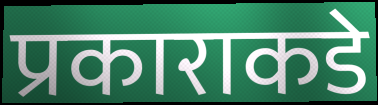
प्रकाराकडे